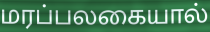
மரப்பலகையால்